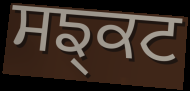
ਸਙ੍ਕਟ